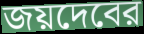
জয়দেবের